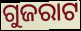
ଗୁଜରାଟ